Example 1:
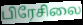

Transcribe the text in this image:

பிரேசிலை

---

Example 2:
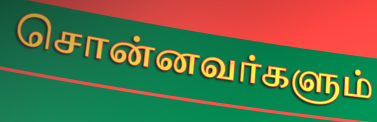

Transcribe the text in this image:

சொன்னவர்களும்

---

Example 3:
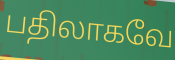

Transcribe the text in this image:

பதிலாகவே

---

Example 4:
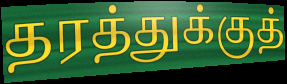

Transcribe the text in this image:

தரத்துக்குத்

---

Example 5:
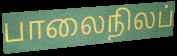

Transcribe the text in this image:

பாலைநிலப்